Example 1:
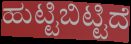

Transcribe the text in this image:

ಹುಟ್ಟಿಬಿಟ್ಟಿದೆ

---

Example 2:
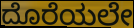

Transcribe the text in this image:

ದೊರೆಯಲೇ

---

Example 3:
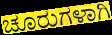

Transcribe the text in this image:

ಚೂರುಗಳಾಗಿ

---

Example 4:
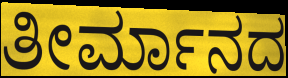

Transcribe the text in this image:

ತೀರ್ಮಾನದ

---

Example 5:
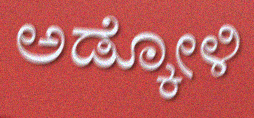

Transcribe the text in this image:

ಅಡ್ಕೋಳಿ